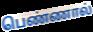
பெண்ணால்